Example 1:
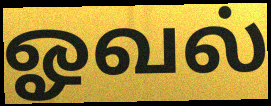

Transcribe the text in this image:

ஓவல்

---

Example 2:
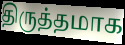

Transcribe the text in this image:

திருத்தமாக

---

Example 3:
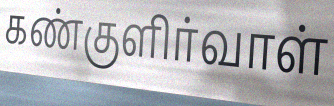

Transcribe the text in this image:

கண்குளிர்வாள்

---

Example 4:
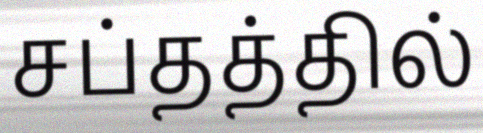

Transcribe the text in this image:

சப்தத்தில்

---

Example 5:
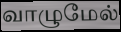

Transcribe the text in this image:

வாழுமேல்